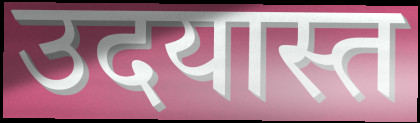
उदयास्त